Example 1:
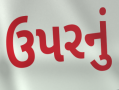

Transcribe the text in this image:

ઉપરનું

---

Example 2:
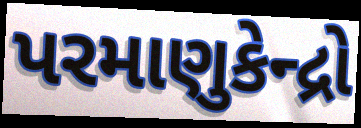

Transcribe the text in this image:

પરમાણુકેન્દ્રો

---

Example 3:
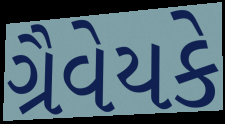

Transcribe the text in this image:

ગ્રૈવેયકે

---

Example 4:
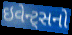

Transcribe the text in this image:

ઇવેન્ટ્સનો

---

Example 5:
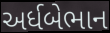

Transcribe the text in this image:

અર્ધબેભાન